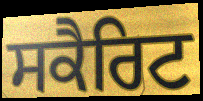
ਸਕੈਰਿਟ